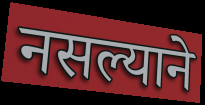
नसल्‍याने